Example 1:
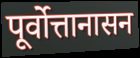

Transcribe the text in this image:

पूर्वोत्तानासन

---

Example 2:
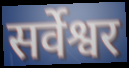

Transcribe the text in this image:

सर्वेश्वर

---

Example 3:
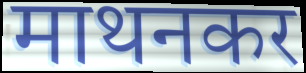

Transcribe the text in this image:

माथनकर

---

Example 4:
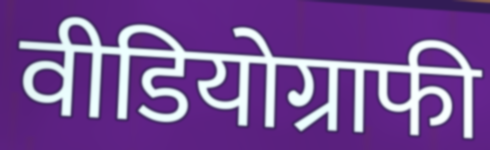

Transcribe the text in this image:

वीडियोग्राफी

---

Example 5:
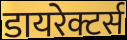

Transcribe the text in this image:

डायरेक्टर्स